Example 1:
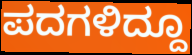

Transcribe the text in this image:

ಪದಗಳಿದ್ದೂ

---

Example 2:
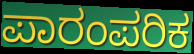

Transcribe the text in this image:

ಪಾರಂಪರಿಕ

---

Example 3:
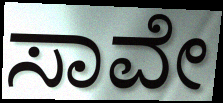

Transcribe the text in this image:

ಸಾವೇ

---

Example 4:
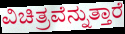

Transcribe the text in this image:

ವಿಚಿತ್ರವೆನ್ನುತ್ತಾರೆ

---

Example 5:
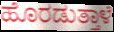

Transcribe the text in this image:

ಹೊರಡುತ್ತಾಳೆ